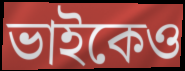
ভাইকেও